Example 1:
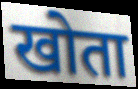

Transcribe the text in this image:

खोता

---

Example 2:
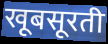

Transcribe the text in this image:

खूबसूरती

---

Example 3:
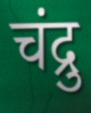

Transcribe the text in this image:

चंद्रु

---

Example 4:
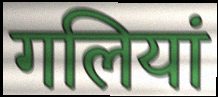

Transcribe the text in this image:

गलियां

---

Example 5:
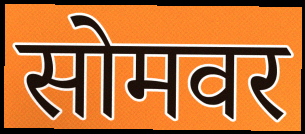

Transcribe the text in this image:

सोमवर